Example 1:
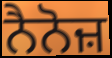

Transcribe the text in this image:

ਨੈਨੋਜ਼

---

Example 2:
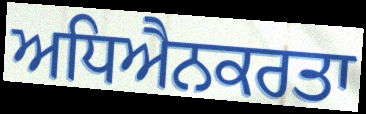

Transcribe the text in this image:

ਅਧਿਐਨਕਰਤਾ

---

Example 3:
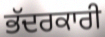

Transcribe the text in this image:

ਭੱਦਰਕਾਰੀ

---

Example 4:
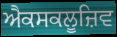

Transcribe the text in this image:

ਐਕਸਕਲੂਜ਼ਿਵ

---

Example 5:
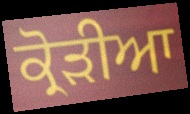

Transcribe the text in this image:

ਕ੍ਰੋੜੀਆ